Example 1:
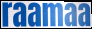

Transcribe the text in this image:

raamaa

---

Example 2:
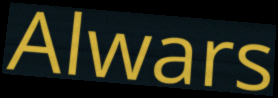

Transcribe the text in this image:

Alwars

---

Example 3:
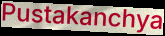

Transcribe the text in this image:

Pustakanchya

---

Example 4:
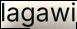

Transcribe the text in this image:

lagawi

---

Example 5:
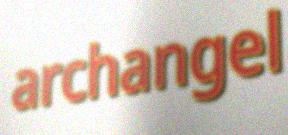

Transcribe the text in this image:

archangel